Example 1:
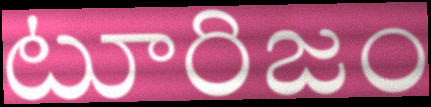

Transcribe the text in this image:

టూరిజం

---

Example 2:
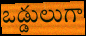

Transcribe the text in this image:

ఒడ్డులుగా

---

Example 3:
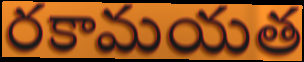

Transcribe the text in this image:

రకామయత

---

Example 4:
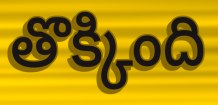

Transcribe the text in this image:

తొక్కింది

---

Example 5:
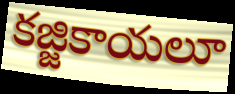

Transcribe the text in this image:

కజ్జికాయలూ